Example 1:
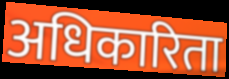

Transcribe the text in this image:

अधिकारिता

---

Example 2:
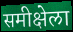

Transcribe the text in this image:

समीक्षेला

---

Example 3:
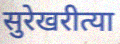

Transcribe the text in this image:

सुरेखरीत्या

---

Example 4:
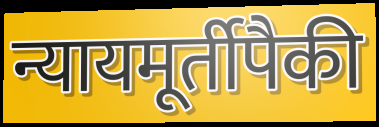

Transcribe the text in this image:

न्यायमूर्तीपैकी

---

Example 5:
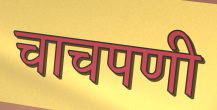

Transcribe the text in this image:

चाचपणी